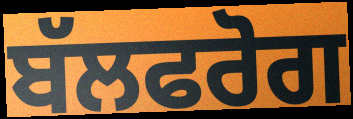
ਬੱਲਫਰੋਗ